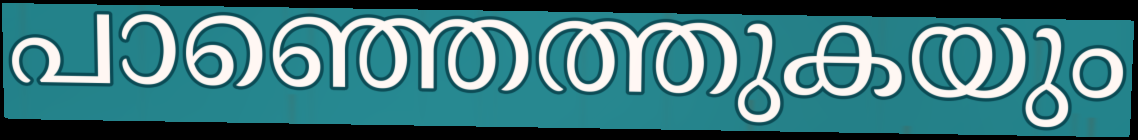
പാഞ്ഞെത്തുകയും